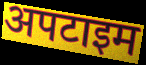
अपटाइम